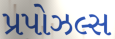
પ્રપોઝલ્સ